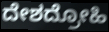
ದೇಶದ್ರೋಹಿ